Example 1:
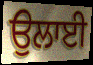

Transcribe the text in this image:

ਉਲਾਈ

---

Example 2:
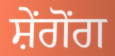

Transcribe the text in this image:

ਸ਼ੇਂਗੋਂਗ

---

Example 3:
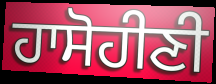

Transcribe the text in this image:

ਹਾਸੋਹੀਣੀ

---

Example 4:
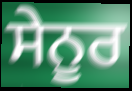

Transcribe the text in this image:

ਸੇਨੂਰ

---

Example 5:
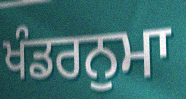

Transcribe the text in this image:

ਖੰਡਰਨੁਮਾ